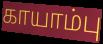
காயாம்பு